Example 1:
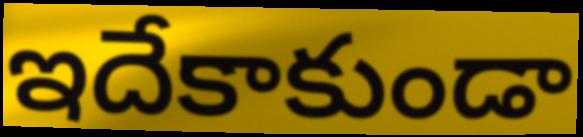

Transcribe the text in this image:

ఇదేకాకుండా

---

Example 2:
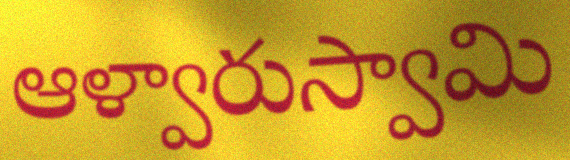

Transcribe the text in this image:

ఆళ్వారుస్వామి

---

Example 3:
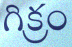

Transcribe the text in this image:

గిక్రం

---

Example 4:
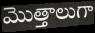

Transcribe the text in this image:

మొత్తాలుగా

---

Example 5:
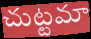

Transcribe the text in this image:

చుట్టమా